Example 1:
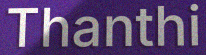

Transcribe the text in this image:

Thanthi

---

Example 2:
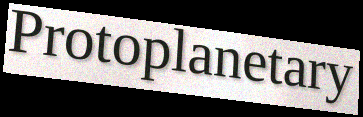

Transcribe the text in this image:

Protoplanetary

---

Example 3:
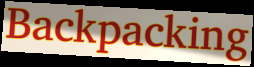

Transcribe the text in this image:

Backpacking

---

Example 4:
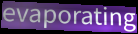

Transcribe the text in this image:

evaporating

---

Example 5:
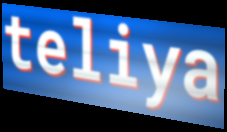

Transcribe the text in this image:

teliya